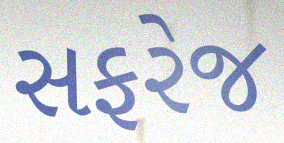
સફરેજ